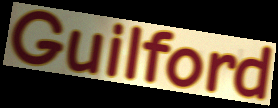
Guilford